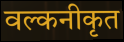
वल्कनीकृत